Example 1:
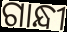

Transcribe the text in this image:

ଗାନ୍ଧୀ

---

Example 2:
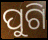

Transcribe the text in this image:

ପୁଗି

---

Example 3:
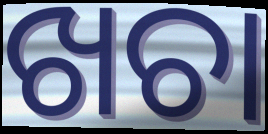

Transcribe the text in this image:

ଖଚା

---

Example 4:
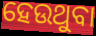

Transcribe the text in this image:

ହେଉଥୁବା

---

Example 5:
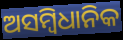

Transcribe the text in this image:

ଅସମ୍ବିଧାନିକ